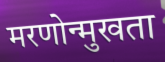
मरणोन्मुखता